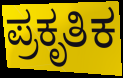
ಪ್ರಕೃತಿಕ